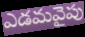
ఎడమవైపు